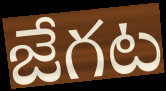
జేగట